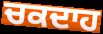
ਚਕਦਾਹ